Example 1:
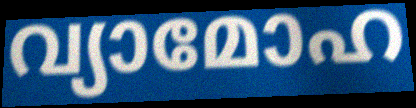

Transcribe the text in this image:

വ്യാമോഹ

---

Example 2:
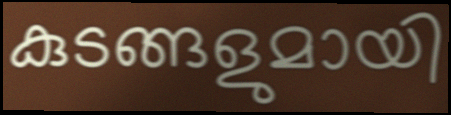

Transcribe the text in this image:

കുടങ്ങളുമായി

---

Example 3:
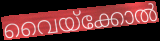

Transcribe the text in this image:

വൈയ്ക്കോൽ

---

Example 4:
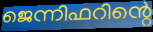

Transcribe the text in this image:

ജെന്നിഫറിന്റെ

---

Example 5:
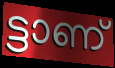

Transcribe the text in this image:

ട്ടാണ്